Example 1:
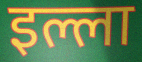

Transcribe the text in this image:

इल्ला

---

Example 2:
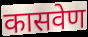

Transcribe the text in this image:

कासवेण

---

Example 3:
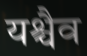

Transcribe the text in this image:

यश्चैव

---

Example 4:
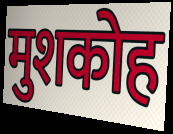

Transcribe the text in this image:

मुशकोह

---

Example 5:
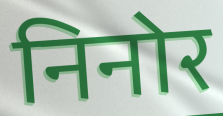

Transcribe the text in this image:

निनोर